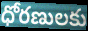
ధోరణులకు